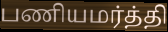
பணியமர்த்தி